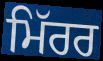
ਮਿੱਰਰ